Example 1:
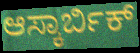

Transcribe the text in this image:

ಆಸ್ಕಾರ್ಬಿಕ್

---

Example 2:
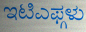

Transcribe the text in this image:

ಇಟಿಎಫ್ಗಳು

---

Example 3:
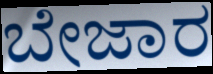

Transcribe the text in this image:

ಬೇಜಾರ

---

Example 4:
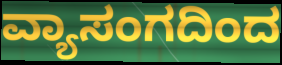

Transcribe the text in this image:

ವ್ಯಾಸಂಗದಿಂದ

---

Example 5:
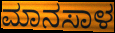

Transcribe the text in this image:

ಮಾನಸಾಳ